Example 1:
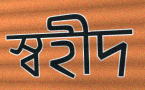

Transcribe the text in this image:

স্বহীদ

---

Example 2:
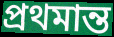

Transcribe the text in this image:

প্ৰথমান্ত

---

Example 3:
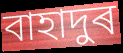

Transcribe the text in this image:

বাহাদুৰ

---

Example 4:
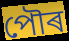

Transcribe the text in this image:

পৌৰ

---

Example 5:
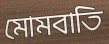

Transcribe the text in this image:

মোমবাতি